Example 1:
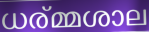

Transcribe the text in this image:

ധര്മ്മശാല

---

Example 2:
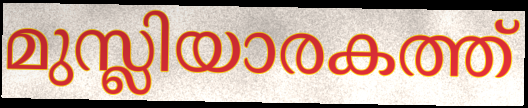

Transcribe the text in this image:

മുസ്ലിയാരകത്ത്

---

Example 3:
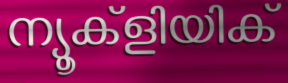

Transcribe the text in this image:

ന്യൂക്ളിയിക്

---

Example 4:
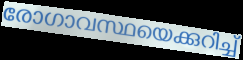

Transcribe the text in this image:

രോഗാവസ്ഥയെക്കുറിച്ച്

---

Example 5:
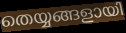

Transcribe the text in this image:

തെയ്യങ്ങളായി